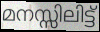
മനസ്സിലിട്ട്